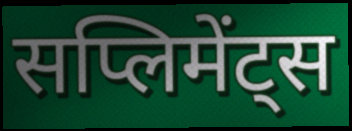
सप्लिमेंट्स